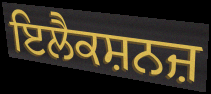
ਇਲੈਕਸ਼ਨਜ਼